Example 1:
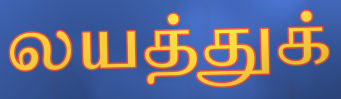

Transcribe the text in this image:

லயத்துக்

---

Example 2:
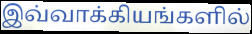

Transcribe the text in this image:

இவ்வாக்கியங்களில்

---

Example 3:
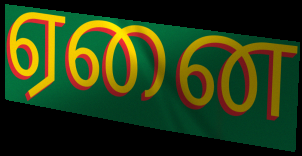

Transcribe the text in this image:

ஏனை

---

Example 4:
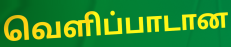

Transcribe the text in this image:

வெளிப்பாடான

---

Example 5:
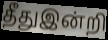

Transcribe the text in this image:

தீதுஇன்றி